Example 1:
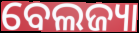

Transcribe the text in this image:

ବେଲଜ୍ୟା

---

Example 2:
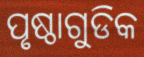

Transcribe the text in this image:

ପୃଷ୍ଠାଗୁଡିକ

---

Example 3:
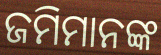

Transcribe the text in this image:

ଜମିମାନଙ୍କ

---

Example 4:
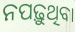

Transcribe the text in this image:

ନପଢ଼ୁଥିବା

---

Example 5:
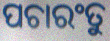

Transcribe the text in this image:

ପଚାରଂତୁ